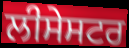
ਲੀਸੇਸਟਰ